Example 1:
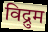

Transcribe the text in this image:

विद्रुम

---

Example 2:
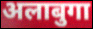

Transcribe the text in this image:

अलाबुगा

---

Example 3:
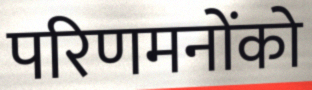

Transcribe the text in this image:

परिणमनोंको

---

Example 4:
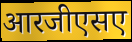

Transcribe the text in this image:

आरजीएसए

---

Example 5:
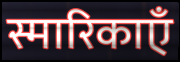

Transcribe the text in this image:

स्मारिकाएँ